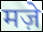
मज़े